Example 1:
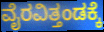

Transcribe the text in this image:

ವೈರವಿತ್ತಂಡಕ್ಕೆ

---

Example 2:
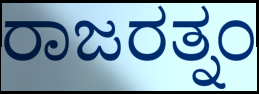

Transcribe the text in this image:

ರಾಜರತ್ನಂ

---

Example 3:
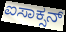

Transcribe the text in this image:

ಐಸಾಕ್ಸನ್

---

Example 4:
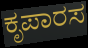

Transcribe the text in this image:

ಕೃಪಾರಸ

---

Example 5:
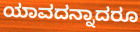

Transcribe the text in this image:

ಯಾವದನ್ನಾದರೂ